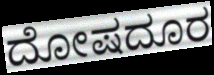
ದೋಷದೂರ